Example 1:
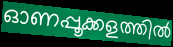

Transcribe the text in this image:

ഓണപ്പൂക്കളത്തിൽ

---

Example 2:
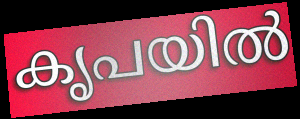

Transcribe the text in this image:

കൃപയിൽ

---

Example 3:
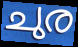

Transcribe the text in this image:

ചുര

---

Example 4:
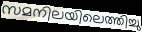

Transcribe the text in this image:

സമനിലയിലെത്തിച്ചു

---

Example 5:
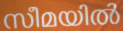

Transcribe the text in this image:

സീമയിൽ